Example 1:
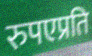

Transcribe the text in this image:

रुपएप्रति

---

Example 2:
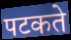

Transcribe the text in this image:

पटकते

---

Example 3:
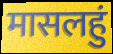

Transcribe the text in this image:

मासलहुं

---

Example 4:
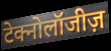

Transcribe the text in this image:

टेक्नोलॉजीज़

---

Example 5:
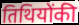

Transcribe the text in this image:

तिथियोंकी